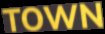
TOWN